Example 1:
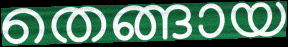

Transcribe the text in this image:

തെങ്ങായ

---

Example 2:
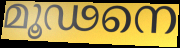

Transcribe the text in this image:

മൂഢനെ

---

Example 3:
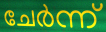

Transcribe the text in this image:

ചേർന്ന്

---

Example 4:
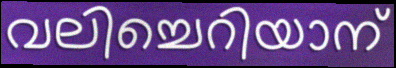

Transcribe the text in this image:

വലിച്ചെറിയാന്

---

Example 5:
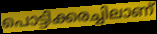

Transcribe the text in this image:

പൊട്ടിക്കരച്ചിലാണ്